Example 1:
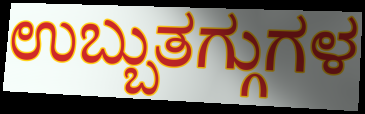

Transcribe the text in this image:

ಉಬ್ಬುತಗ್ಗುಗಳ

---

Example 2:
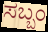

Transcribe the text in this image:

ಸಬ್ಬಂ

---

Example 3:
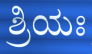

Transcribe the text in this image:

ಶ್ರಿಯಃ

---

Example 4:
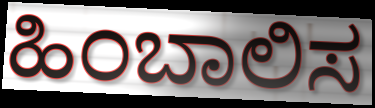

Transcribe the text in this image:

ಹಿಂಬಾಲಿಸ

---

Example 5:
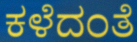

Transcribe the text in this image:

ಕಳೆದಂತೆ